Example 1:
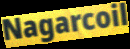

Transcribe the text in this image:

Nagarcoil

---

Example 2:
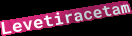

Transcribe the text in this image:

Levetiracetam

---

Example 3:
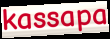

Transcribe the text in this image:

kassapa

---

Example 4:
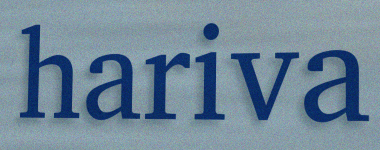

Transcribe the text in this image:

hariva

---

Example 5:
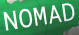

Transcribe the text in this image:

NOMAD